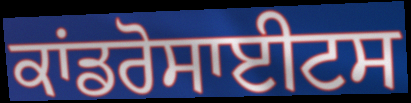
ਕਾਂਡਰੋਸਾਈਟਸ